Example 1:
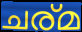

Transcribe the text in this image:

ചര്മ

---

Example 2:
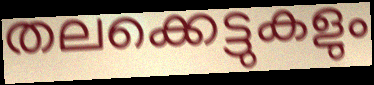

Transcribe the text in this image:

തലക്കെട്ടുകളും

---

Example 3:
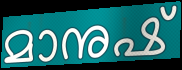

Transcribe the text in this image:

മാനുഷ്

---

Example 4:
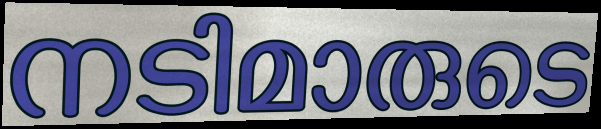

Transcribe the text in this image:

നടിമാരുടെ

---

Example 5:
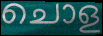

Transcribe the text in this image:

ചൊള